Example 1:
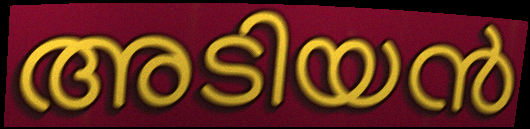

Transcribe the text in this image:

അടിയൻ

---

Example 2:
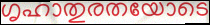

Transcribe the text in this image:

ഗൃഹാതുരതയോടെ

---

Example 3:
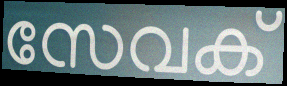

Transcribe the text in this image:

സേവക്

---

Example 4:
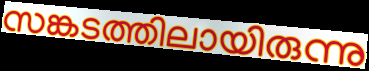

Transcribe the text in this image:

സങ്കടത്തിലായിരുന്നു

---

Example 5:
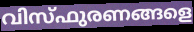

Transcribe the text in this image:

വിസ്ഫുരണങ്ങളെ